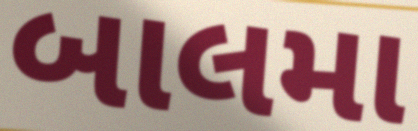
બાલમા